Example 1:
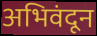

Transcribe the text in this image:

अभिवंदून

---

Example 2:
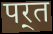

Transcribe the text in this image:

पर्त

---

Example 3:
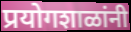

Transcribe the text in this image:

प्रयोगशाळांनी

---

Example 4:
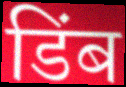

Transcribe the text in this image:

डिंब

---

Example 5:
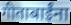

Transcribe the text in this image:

गीताबाईंना